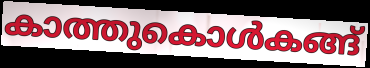
കാത്തുകൊൾകങ്ങ്